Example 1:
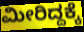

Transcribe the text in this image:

ಮೀರಿದ್ದಕ್ಕೆ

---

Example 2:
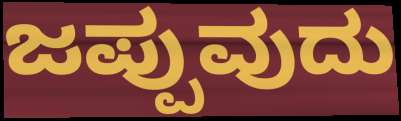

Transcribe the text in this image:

ಜಪ್ಪುವುದು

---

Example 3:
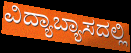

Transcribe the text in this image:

ವಿದ್ಯಾಬ್ಯಾಸದಲ್ಲಿ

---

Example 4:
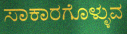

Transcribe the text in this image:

ಸಾಕಾರಗೊಳ್ಳುವ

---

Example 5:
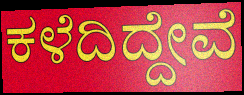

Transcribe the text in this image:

ಕಳೆದಿದ್ದೇವೆ